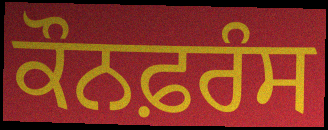
ਕੌਨਫ਼ਰੰਸ